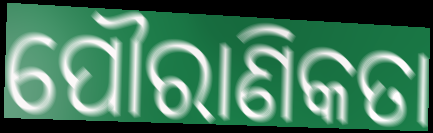
ପୌରାଣିକତା